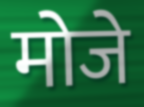
मोजे